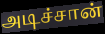
அடிச்சான்